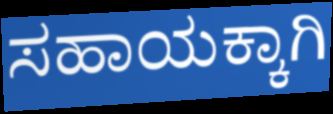
ಸಹಾಯಕ್ಕಾಗಿ